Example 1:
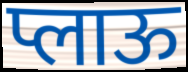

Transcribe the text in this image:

प्लाऊ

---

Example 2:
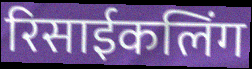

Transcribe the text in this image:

रिसाईकलिंग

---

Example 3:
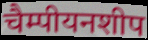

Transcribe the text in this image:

चैम्पीयनशीप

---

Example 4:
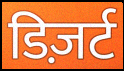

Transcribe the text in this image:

डिज़र्ट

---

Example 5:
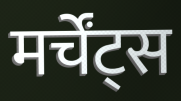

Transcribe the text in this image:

मर्चेंट्स